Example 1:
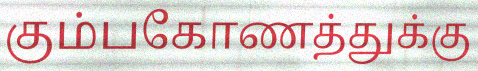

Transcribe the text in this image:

கும்பகோணத்துக்கு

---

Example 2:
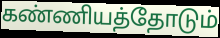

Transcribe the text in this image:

கண்ணியத்தோடும்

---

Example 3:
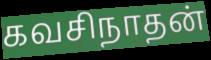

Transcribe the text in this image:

கவசிநாதன்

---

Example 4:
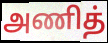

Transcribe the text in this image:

அணித்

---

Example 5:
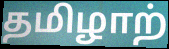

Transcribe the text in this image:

தமிழாற்